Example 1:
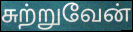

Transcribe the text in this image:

சுற்றுவேன்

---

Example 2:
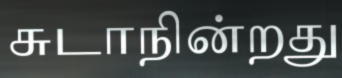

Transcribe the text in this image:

சுடாநின்றது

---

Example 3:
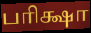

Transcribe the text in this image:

பரிக்ஷா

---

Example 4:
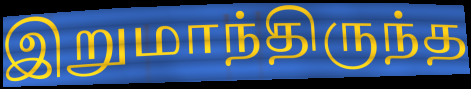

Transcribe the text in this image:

இறுமாந்திருந்த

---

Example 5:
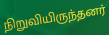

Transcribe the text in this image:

நிறுவியிருந்தனர்